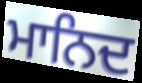
ਮਾਨਿਦ